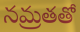
నమ్రతతో